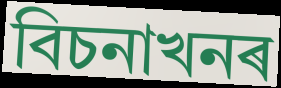
বিচনাখনৰ